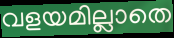
വളയമില്ലാതെ